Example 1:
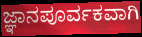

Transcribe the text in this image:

ಜ್ಞಾನಪೂರ್ವಕವಾಗಿ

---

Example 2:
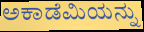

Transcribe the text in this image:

ಅಕಾಡೆಮಿಯನ್ನು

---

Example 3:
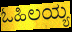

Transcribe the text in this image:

ಓಹಿಲಯ್ಯ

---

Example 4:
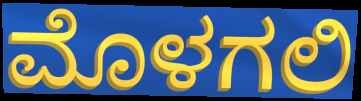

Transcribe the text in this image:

ಮೊಳಗಲಿ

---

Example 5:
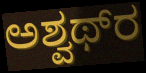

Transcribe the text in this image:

ಅಶ್ವಥ್‌ರ